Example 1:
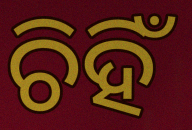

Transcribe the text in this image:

ଚିହିଁ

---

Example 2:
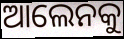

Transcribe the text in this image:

ଆଲେନକୁ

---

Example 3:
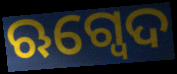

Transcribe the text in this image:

ଋଗ୍ବେଦ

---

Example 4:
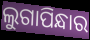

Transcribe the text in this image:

ଲୁଗାପିନ୍ଧାର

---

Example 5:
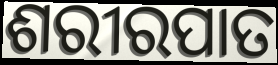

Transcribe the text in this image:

ଶରୀରପାତ